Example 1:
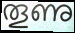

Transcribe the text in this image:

തൂണു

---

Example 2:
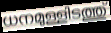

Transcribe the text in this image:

ധനമുള്ളിടത്തു്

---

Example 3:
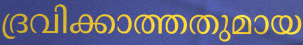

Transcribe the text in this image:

ദ്രവിക്കാത്തതുമായ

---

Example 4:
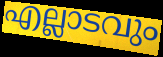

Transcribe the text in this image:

എല്ലാടവും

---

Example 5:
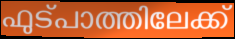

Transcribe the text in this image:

ഫുട്പാത്തിലേക്ക്